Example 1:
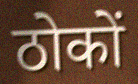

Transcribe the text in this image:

ठोकों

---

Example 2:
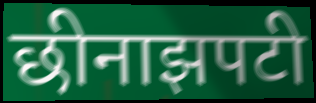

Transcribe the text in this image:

छीनाझपटी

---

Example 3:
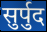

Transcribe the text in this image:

सुर्पुद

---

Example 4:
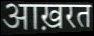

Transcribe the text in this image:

आख़रत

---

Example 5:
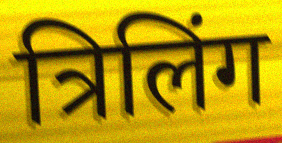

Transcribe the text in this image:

त्रिलिंग